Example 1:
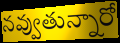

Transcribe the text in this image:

నవ్వుతున్నారో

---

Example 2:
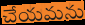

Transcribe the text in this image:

చేయమను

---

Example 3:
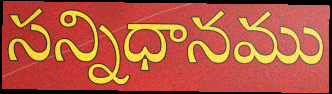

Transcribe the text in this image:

సన్నిధానము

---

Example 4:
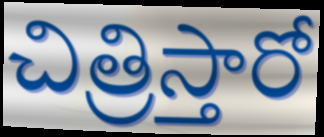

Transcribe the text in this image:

చిత్రిస్తారో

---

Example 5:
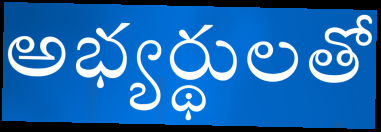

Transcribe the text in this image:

అభ్యర్థులతో